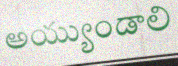
అయ్యుండాలి